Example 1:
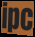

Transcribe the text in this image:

ipc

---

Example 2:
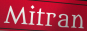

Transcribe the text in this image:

Mitran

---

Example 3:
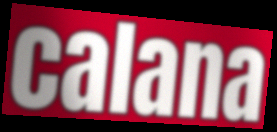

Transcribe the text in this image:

calana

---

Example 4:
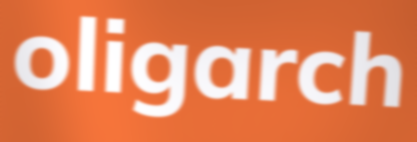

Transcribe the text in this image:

oligarch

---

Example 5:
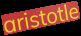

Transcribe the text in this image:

aristotle